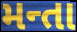
મન્તા